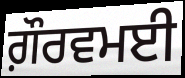
ਗ਼ੌਰਵਮਈ